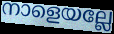
നാളെയല്ലേ